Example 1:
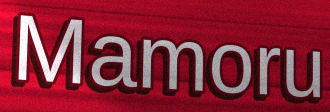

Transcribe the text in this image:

Mamoru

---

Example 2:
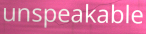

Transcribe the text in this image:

unspeakable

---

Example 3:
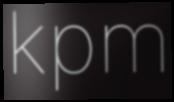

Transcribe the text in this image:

kpm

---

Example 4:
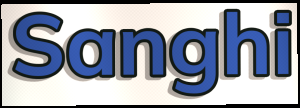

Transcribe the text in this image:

Sanghi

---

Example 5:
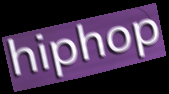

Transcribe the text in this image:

hiphop